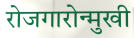
रोजगारोन्मुखी